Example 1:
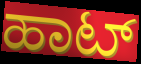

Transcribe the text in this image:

ಹಾಟ್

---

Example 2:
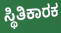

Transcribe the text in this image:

ಸ್ಥಿತಿಕಾರಕ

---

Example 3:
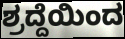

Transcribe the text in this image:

ಶ್ರದ್ದೆಯಿಂದ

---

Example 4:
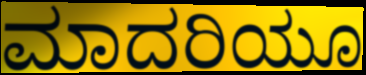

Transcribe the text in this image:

ಮಾದರಿಯೂ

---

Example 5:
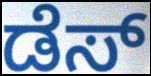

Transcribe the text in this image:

ಡೆಸ್